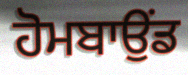
ਹੋਮਬਾਉਂਡ